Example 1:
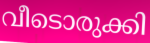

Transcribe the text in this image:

വീടൊരുക്കി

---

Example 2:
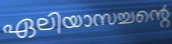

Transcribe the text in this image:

ഏലിയാസച്ചന്റെ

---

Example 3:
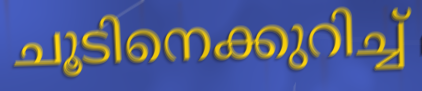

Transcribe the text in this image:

ചൂടിനെക്കുറിച്ച്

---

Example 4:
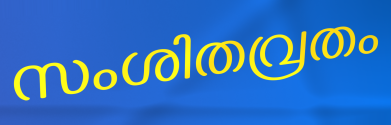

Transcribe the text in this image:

സംശിതവ്രതം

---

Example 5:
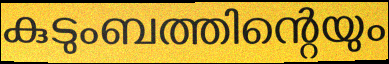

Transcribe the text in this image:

കുടുംബത്തിന്റെയും